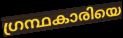
ഗ്രന്ഥകാരിയെ